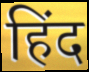
हिंद